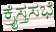
ಕ್ರೈಸ್ತಸಭೆ